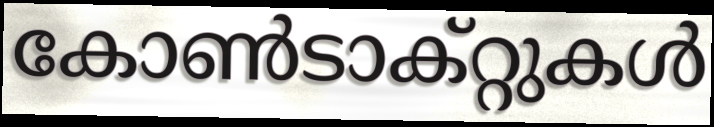
കോൺടാക്റ്റുകൾ